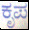
ಕೃಪ